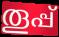
തൂപ്പ്